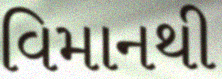
વિમાનથી